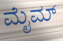
ಮೈಮ್